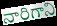
నారిగాని